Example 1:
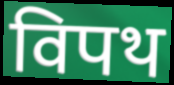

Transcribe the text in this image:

विपथ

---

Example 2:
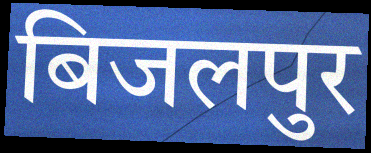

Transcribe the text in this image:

बिजलपुर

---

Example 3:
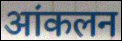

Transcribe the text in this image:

आंकलन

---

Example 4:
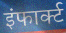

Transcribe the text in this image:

इंफार्क्ट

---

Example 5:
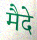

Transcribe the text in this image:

मैदे